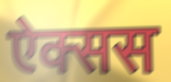
ऐक्सस